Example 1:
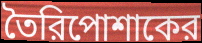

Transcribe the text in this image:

তৈরিপোশাকের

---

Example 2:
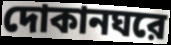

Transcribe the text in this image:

দোকানঘরে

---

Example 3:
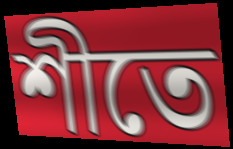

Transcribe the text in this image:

শীতে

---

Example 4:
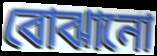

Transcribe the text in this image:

বোঝানো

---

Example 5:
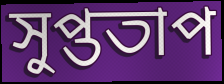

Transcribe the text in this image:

সুপ্ততাপ